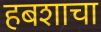
हबशाचा